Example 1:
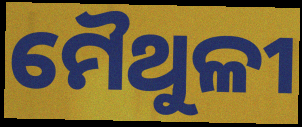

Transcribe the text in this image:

ମୈଥୁଳୀ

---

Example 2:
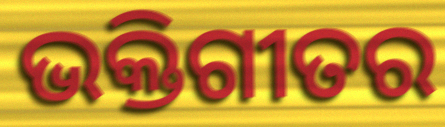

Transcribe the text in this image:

ଭକ୍ତିଗୀତର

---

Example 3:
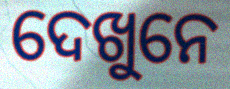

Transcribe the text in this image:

ଦେଖୁନେ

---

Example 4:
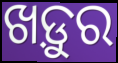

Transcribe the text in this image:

ଖଡ଼ୁର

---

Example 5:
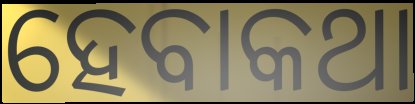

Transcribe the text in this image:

ହେବାକଥା